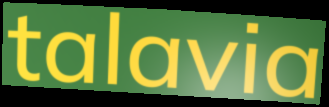
talavia